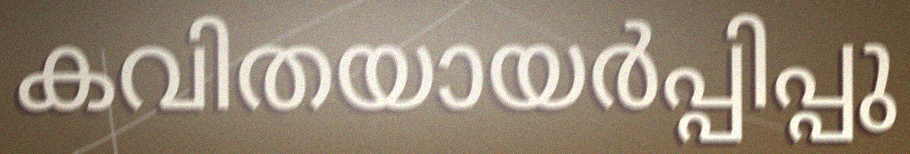
കവിതയായർപ്പിപ്പു